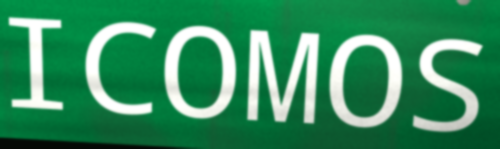
ICOMOS